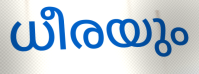
ധീരയും